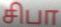
சிபா